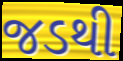
જડથી